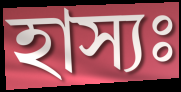
হাস্যঃ